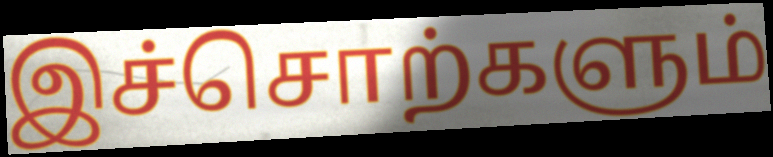
இச்சொற்களும்